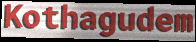
Kothagudem